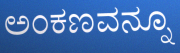
ಅಂಕಣವನ್ನೂ